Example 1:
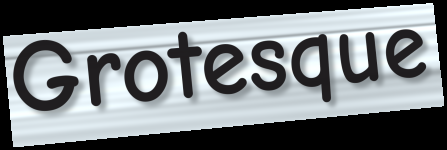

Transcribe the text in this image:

Grotesque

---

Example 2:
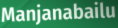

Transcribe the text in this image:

Manjanabailu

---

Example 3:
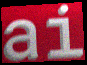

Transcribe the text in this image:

ai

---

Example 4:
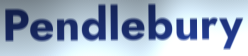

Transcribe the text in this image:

Pendlebury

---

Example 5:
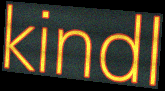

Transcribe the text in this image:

kindl